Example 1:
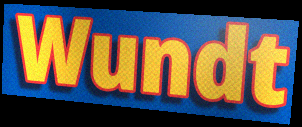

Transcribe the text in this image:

Wundt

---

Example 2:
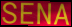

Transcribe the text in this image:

SENA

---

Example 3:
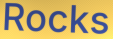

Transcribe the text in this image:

Rocks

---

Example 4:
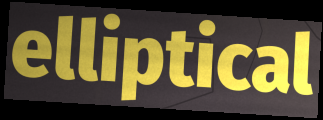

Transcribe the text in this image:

elliptical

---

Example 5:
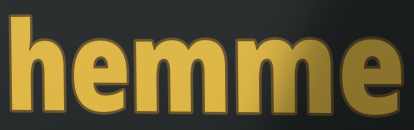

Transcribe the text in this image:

hemme